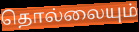
தொல்லையும்